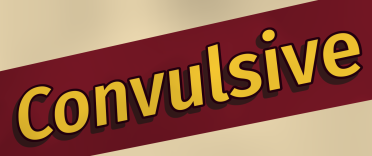
Convulsive